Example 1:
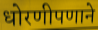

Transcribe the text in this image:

धोरणीपणाने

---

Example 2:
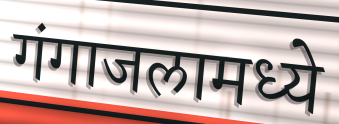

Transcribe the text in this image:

गंगाजलामध्ये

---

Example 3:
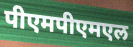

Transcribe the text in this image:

पीएमपीएमएल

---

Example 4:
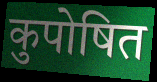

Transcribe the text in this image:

कुपोषित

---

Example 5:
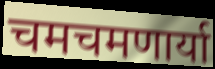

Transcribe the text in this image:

चमचमणार्या